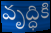
వృద్ధికి